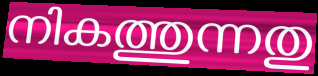
നികത്തുന്നതു